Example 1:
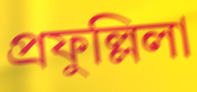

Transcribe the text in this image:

প্রফুল্লিলা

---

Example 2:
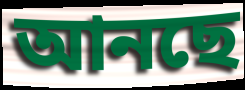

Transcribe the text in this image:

আনছে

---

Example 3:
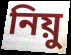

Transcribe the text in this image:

নিয়ু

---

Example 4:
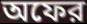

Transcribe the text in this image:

অফের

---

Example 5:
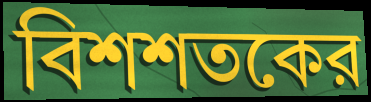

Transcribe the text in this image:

বিশশতকের